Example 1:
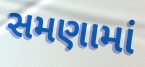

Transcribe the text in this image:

સમણામાં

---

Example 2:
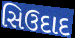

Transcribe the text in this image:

સિઉદાદ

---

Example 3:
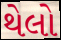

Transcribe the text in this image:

થેલો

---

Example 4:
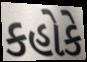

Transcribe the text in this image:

કહોકે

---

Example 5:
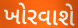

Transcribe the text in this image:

ખોરવાશે